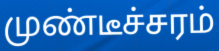
முண்டீச்சரம்